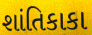
શાંતિકાકા